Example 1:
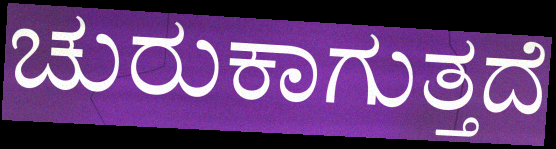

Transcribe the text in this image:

ಚುರುಕಾಗುತ್ತದೆ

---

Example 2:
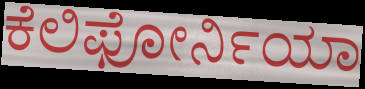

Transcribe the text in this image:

ಕೆಲಿಫೋರ್ನಿಯಾ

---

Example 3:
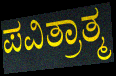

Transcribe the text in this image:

ಪವಿತ್ರಾತ್ಮ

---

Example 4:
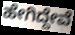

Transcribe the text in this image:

ಹೇಗಿದ್ದೇವೆ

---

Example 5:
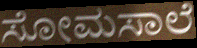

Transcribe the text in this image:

ಸೋಮಸಾಲೆ